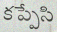
కప్పేసి